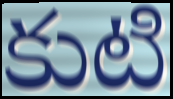
కుటి